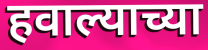
हवाल्याच्या